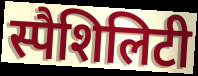
स्पैशिलिटी